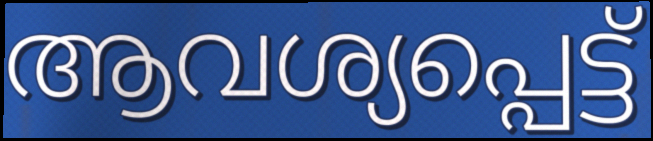
ആവശ്യപ്പെട്ട്